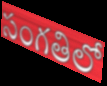
సంగతిలో